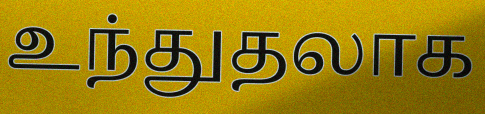
உந்துதலாக